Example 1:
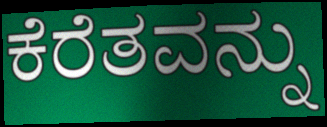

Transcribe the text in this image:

ಕೆರೆತವನ್ನು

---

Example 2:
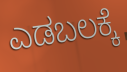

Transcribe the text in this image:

ಎಡಬಲಕ್ಕೆ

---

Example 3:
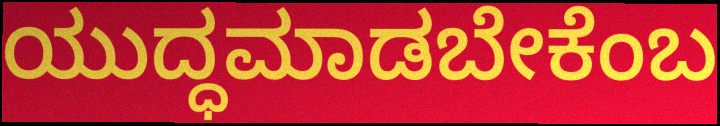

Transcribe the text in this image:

ಯುದ್ಧಮಾಡಬೇಕೆಂಬ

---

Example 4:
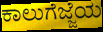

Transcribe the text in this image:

ಕಾಲುಗೆಜ್ಜೆಯ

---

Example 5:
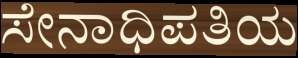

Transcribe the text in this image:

ಸೇನಾಧಿಪತಿಯ